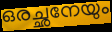
ഒരച്ഛനേയും